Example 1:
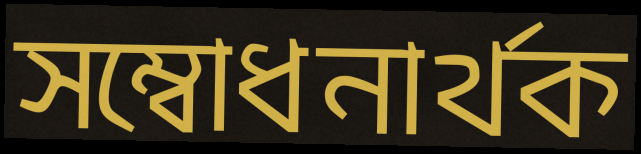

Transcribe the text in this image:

সম্বোধনাৰ্থক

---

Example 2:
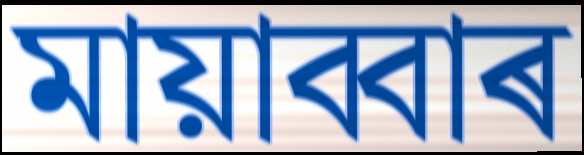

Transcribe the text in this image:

মায়াব্বাৰ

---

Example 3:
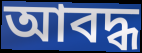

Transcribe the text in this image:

আবদ্ধ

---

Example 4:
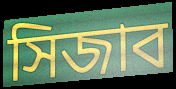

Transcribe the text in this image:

সিজাব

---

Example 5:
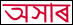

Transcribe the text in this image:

অসাৰ